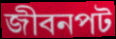
জীবনপট